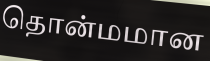
தொன்மமான